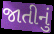
જાતીનું